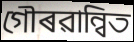
গৌৰৱান্বিত